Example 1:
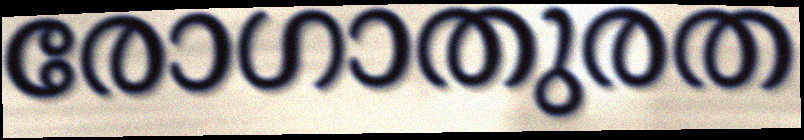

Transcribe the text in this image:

രോഗാതുരത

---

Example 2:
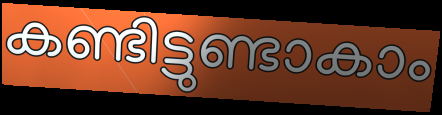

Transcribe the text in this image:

കണ്ടിട്ടുണ്ടാകാം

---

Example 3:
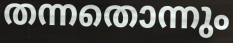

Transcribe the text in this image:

തന്നതൊന്നും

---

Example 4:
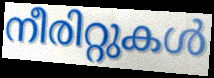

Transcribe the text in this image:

നീരിറ്റുകൾ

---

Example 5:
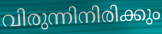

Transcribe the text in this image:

വിരുന്നിനിരിക്കും